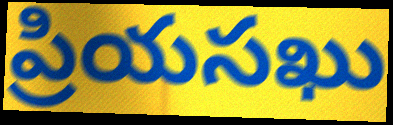
ప్రియసఖు